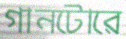
গানটোৱে